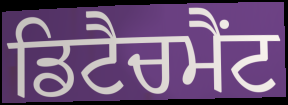
ਡਿਟੈਚਮੈਂਟ